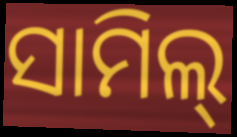
ସାମିଲ୍